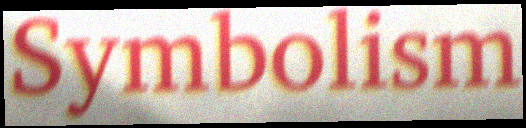
Symbolism